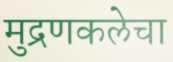
मुद्रणकलेचा